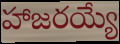
హాజరయ్యే